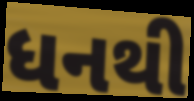
ધનથી